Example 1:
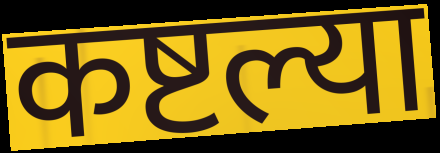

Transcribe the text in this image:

कष्टल्या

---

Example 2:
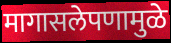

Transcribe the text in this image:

मागासलेपणामुळे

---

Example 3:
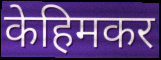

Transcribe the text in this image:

केहिमकर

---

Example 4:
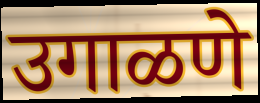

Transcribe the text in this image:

उगाळणे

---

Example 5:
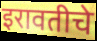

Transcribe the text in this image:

इरावतीचे